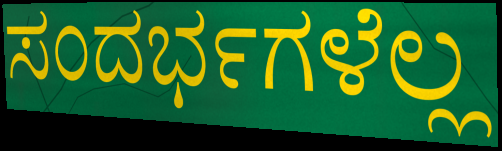
ಸಂದರ್ಭಗಳೆಲ್ಲ